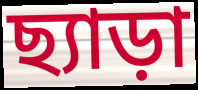
ছ্যাড়া